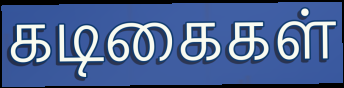
கடிகைகள்